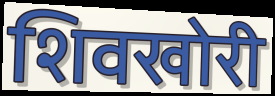
शिवखोरी